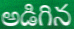
అడిగిన